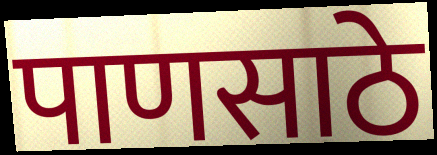
पाणसाठे